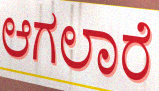
ಆಗಲಾರೆ